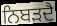
ਨਿਬੜਦੈ